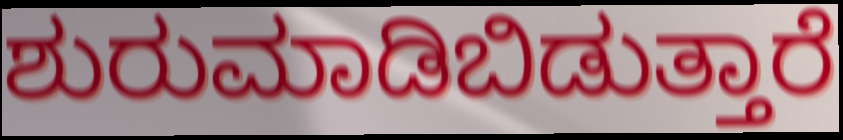
ಶುರುಮಾಡಿಬಿಡುತ್ತಾರೆ